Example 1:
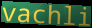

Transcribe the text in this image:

vachli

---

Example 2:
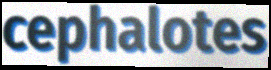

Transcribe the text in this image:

cephalotes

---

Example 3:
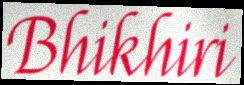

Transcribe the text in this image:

Bhikhiri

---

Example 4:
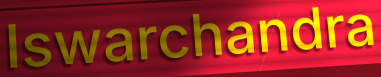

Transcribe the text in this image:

Iswarchandra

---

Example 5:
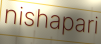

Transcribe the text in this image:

nishapari